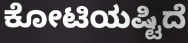
ಕೋಟಿಯಷ್ಟಿದೆ